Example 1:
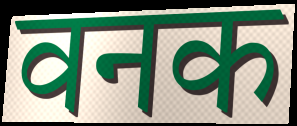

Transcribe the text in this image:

वनक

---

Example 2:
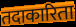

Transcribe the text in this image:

तदाकारिता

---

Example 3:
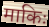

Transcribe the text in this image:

माकिः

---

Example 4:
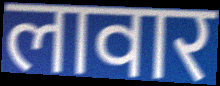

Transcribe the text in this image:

लावार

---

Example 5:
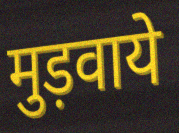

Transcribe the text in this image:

मुड़वाये